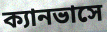
ক্যানভাসে